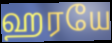
ஹரயே